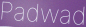
Padwad